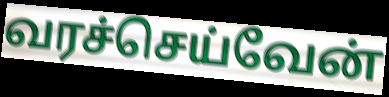
வரச்செய்வேன்